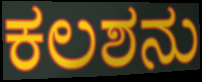
ಕಲಶನು